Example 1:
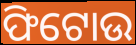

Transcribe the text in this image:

ଫିଟୋଉ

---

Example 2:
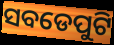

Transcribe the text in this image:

ସବଡେପୁଟି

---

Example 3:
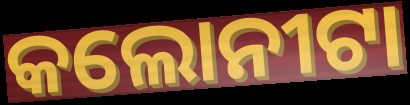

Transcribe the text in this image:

କଲୋନୀଟା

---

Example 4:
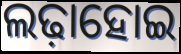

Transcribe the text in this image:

ଲଢ଼ାହୋଇ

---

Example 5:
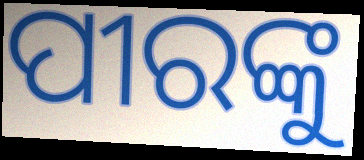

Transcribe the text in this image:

ପୀରଙ୍କୁ